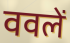
ववलें